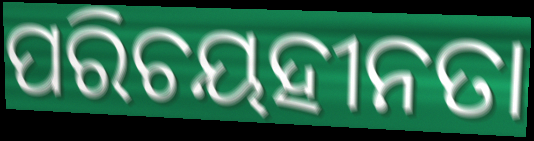
ପରିଚୟହୀନତା